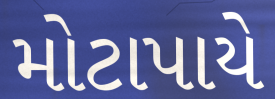
મોટાપાયે